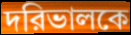
দরিভালকে